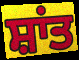
ਸ਼ਾਂਤ